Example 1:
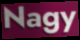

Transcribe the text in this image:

Nagy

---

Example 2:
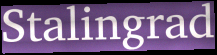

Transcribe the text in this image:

Stalingrad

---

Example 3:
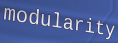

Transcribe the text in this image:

modularity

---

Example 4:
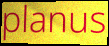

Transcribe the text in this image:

planus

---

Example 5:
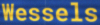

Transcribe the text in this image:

Wessels